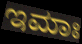
ಇಮಾಃ